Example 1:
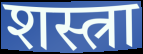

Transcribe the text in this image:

शस्त्रा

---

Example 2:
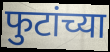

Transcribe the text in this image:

फुटांच्‍या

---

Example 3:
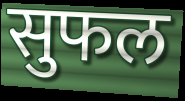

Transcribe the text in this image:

सुफल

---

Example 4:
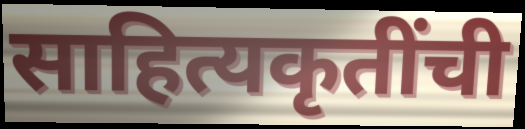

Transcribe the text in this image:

साहित्यकृतींची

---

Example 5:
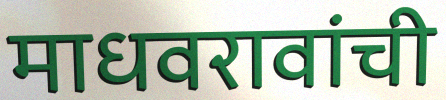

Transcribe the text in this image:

माधवरावांची